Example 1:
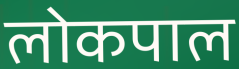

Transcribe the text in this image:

लोकपाल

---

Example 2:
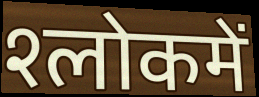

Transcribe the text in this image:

श्लोकमें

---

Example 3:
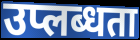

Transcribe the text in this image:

उप्लब्धता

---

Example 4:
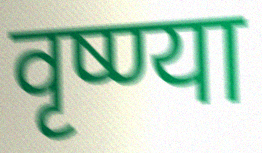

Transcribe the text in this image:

वृष्ण्या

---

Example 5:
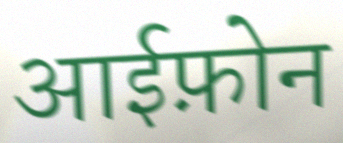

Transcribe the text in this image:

आईफ़ोन